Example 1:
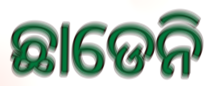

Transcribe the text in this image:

ଛାଡେନି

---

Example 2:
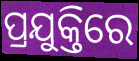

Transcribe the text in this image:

ପ୍ରଯୁକ୍ତିରେ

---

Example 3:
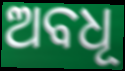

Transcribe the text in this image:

ଅବଧୂ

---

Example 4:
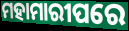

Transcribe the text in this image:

ମହାମାରୀପରେ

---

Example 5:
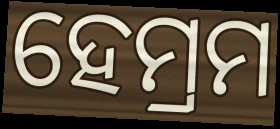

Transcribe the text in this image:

ହେମ୍ରମ